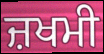
ਜ਼ਖਮੀ